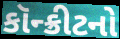
કૉન્ક્રીટનો